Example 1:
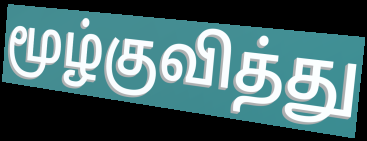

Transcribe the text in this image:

மூழ்குவித்து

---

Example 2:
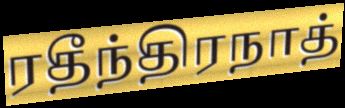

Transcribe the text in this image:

ரதீந்திரநாத்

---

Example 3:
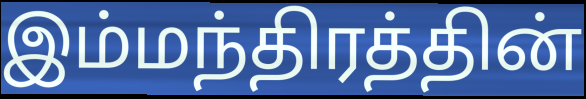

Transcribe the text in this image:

இம்மந்திரத்தின்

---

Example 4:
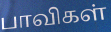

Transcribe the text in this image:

பாவிகள்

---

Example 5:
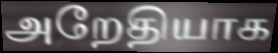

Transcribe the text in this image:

அறேதியாக